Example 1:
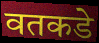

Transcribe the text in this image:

वतकडे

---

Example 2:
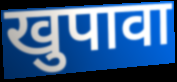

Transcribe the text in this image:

खुपावा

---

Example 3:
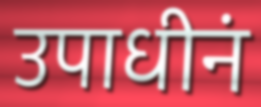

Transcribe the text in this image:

उपाधीनं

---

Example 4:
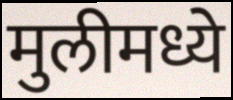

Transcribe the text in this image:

मुलीमध्ये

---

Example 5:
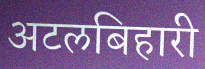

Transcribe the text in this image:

अटलबिहारी